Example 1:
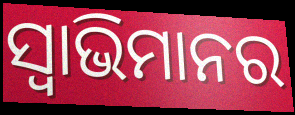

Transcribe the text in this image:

ସ୍ଵାଭିମାନର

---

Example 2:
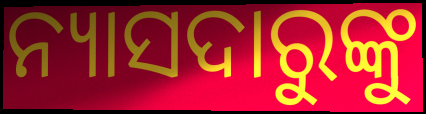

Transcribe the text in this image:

ନ୍ୟାସଦାରୁଙ୍କୁ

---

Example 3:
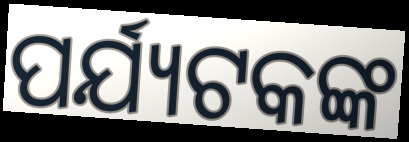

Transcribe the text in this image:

ପର୍ଯ୍ୟଟକଙ୍କ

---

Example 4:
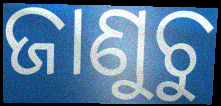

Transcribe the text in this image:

ଜାଣୁଚୁ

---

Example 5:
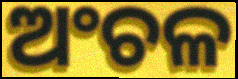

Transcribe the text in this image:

ଅଂଚଳ